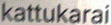
kattukarai